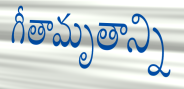
గీతామృతాన్ని